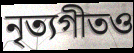
নৃত্যগীতও